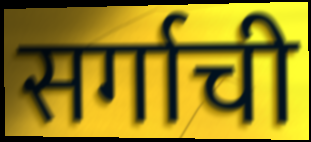
सर्गाची